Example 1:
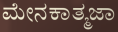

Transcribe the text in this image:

ಮೇನಕಾತ್ಮಜಾ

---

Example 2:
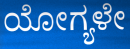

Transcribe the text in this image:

ಯೋಗ್ಯಳೇ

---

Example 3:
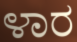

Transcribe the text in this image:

ಳಾರ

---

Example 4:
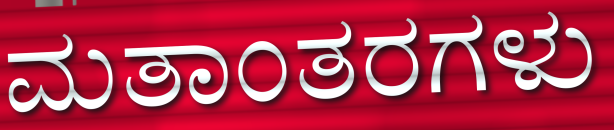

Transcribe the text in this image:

ಮತಾಂತರಗಳು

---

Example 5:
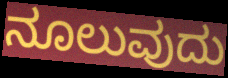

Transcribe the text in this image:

ನೂಲುವುದು